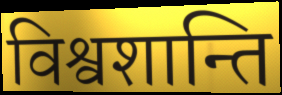
विश्वशान्ति